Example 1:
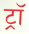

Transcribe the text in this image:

ट्रॉ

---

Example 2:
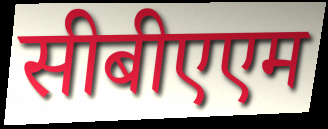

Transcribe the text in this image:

सीबीएएम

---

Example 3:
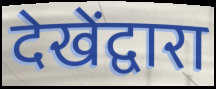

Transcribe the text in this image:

देखेंद्वारा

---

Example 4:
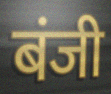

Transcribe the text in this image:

बंजी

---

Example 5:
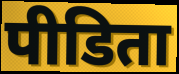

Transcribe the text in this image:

पीडिता